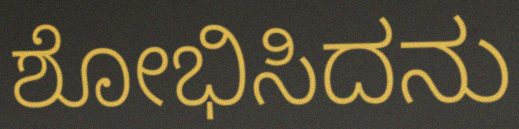
ಶೋಭಿಸಿದನು